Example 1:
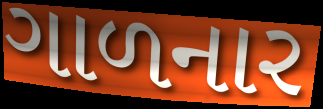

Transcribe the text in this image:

ગાળનાર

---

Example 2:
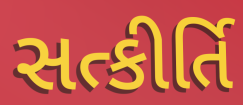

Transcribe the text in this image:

સત્કીર્તિ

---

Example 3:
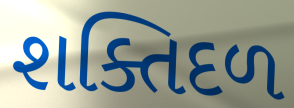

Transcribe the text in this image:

શક્તિદળ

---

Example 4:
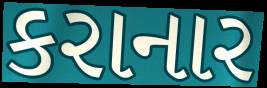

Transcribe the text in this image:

કરાનાર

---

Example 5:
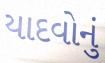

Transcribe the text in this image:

યાદવોનું